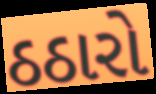
ઠઠારો